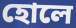
হোলে